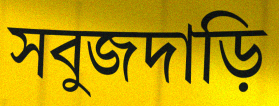
সবুজদাড়ি